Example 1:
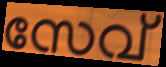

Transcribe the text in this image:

സേവ്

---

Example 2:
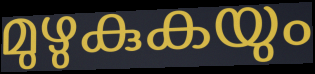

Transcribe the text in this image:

മുഴുകുകയും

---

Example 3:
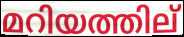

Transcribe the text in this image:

മറിയത്തില്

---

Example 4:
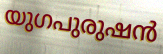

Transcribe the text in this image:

യുഗപുരുഷൻ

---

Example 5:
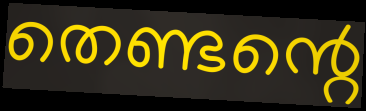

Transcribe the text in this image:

തെണ്ടന്റെ